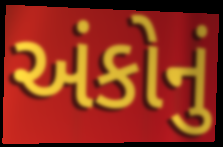
અંકોનું